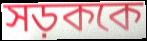
সড়ককে